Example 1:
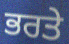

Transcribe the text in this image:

ਭਰਤੇ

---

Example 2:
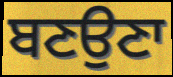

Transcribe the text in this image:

ਬਣਉਣਾ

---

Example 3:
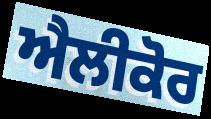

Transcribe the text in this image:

ਐਲੀਕੋਰ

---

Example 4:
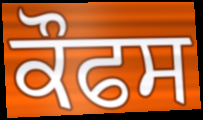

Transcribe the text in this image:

ਕੌਫਸ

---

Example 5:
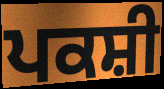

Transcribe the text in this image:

ਪਕਸ਼ੀ